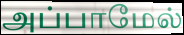
அப்பாமேல்